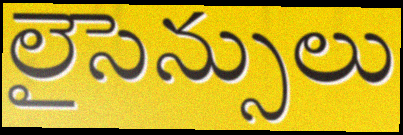
లైసెన్సులు